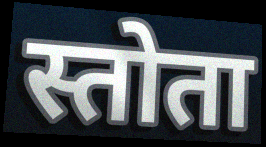
स्तोता